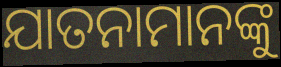
ଯାତନାମାନଙ୍କୁ